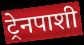
ट्रेनपाशी